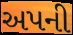
અપની